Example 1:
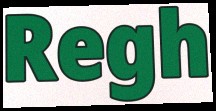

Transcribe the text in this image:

Regh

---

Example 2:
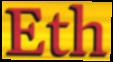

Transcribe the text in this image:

Eth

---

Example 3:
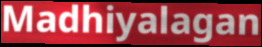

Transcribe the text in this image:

Madhiyalagan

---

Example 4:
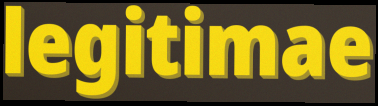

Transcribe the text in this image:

legitimae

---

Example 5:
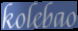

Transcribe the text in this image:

kolebao